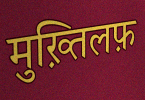
मुख़्तिलफ़